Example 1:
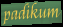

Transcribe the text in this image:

padikum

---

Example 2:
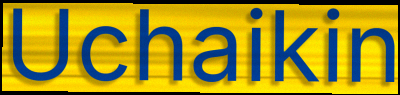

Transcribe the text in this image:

Uchaikin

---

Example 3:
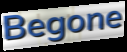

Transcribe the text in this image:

Begone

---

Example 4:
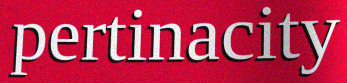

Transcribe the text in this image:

pertinacity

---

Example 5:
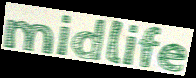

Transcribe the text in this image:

midlife